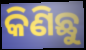
କିଣିଛୁ